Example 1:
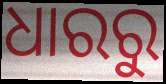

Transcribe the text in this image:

ଧାରରୁ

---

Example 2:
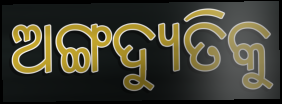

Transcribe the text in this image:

ଅଙ୍ଗଦ୍ୟୁତିକୁ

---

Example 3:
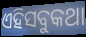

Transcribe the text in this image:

ଏହିସବୁକଥା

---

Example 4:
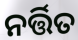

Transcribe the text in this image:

ନର୍ତ୍ତିତ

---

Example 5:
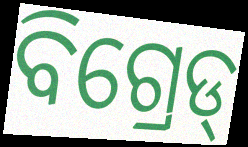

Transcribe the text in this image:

ବିଗ୍ରେଡ୍